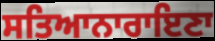
ਸਤਿਆਨਾਰਾਇਣਾ